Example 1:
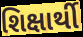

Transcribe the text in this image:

શિક્ષાર્થી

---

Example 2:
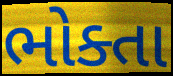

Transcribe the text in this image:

ભોક્તા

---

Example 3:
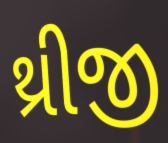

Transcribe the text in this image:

થ્રીજી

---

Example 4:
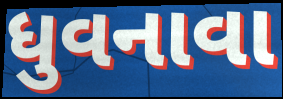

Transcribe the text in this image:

ધુવનાવા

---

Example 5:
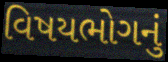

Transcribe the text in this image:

વિષયભોગનું